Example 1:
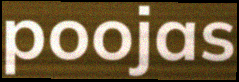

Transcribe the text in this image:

poojas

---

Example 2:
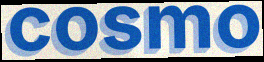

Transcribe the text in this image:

cosmo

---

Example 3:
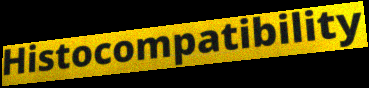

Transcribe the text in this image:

Histocompatibility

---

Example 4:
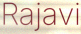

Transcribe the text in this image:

Rajavi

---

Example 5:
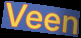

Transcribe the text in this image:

Veen